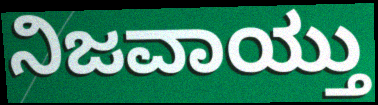
ನಿಜವಾಯ್ತು